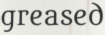
greased